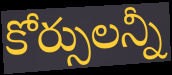
కోర్సులన్నీ